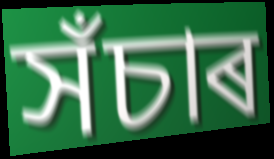
সঁচাৰ